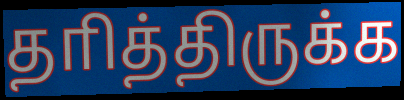
தரித்திருக்க